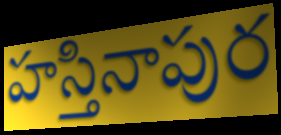
హస్తినాపుర